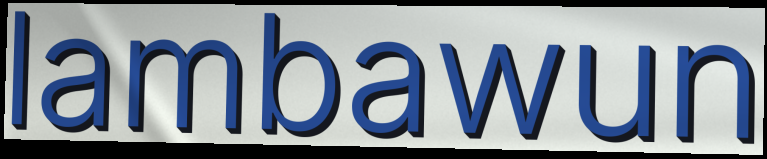
lambawun